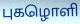
புகழொளி